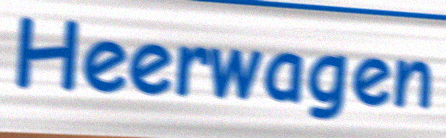
Heerwagen